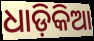
ଧାଡ଼ିକିଆ